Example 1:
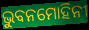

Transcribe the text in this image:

ଭୁବନମୋହିନୀ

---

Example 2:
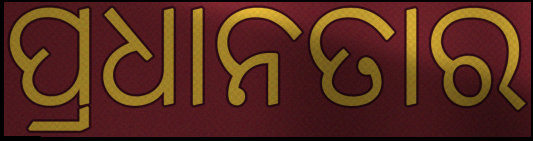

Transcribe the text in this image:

ପ୍ରଧାନତାର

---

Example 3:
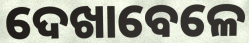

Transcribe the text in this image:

ଦେଖାବେଳେ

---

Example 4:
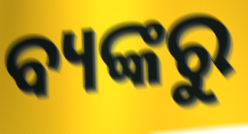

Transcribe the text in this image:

ବ୍ୟଙ୍କରୁ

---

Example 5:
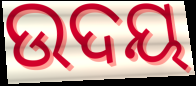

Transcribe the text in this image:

ଉଦୟ